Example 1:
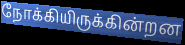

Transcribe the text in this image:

நோக்கியிருக்கின்றன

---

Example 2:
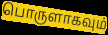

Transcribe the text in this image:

பொருளாகவும்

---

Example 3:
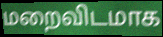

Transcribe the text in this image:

மறைவிடமாக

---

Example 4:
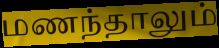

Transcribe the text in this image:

மணந்தாலும்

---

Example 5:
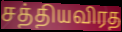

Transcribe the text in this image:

சத்தியவிரத